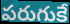
పరుగుకే